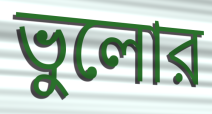
ভুলোর